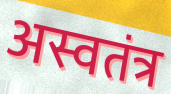
अस्वतंत्र